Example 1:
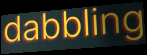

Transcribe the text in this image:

dabbling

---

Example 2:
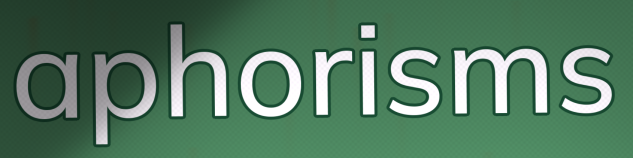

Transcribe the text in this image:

aphorisms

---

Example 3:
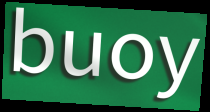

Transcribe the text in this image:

buoy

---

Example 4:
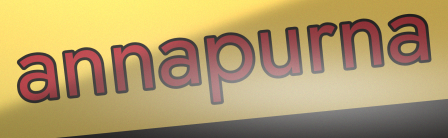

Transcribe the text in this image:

annapurna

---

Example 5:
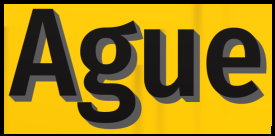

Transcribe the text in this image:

Ague